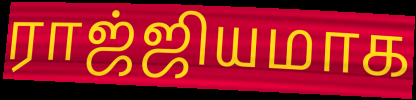
ராஜ்ஜியமாக